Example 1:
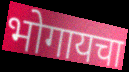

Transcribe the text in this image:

भोगायचा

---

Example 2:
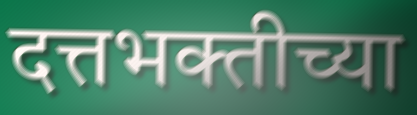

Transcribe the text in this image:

दत्तभक्तीच्या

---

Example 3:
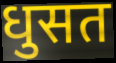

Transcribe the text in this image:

धुसत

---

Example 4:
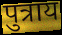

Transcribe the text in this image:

पुत्राय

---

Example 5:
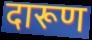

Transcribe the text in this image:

दारूण